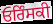
ਓਰਿੰਸਕੀ